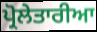
ਪ੍ਰੋਲੇਤਾਰੀਆ